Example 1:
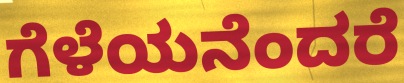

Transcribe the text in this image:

ಗೆಳೆಯನೆಂದರೆ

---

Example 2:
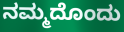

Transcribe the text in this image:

ನಮ್ಮದೊಂದು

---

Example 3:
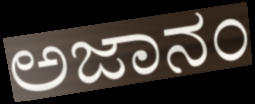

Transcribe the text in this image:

ಅಜಾನಂ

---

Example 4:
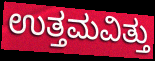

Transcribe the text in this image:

ಉತ್ತಮವಿತ್ತು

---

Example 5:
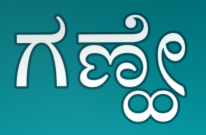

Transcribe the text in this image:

ಗಣ್ಹೇ